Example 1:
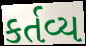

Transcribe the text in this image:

કર્તવ્ય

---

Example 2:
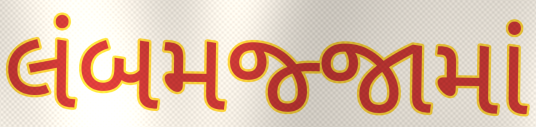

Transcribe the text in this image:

લંબમજ્જામાં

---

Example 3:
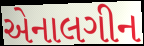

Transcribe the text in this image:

એનાલગીન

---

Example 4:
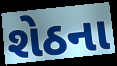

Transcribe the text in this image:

શેઠના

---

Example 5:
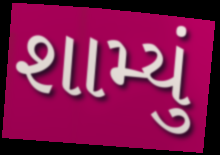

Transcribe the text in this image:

શામ્યું